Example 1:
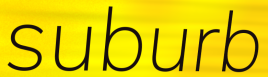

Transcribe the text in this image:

suburb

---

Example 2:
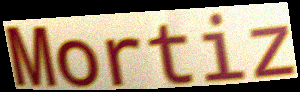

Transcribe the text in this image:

Mortiz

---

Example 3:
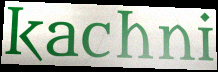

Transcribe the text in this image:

kachni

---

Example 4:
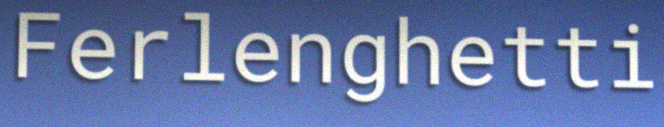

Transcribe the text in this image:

Ferlenghetti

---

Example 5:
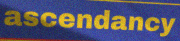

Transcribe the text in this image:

ascendancy